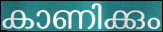
കാണിക്കും